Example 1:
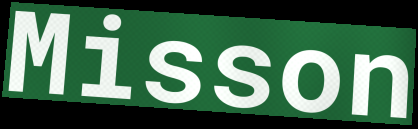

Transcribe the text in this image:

Misson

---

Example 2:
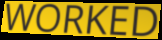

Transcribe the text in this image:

WORKED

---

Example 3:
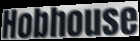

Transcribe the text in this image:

Hobhouse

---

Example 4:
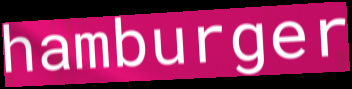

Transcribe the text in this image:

hamburger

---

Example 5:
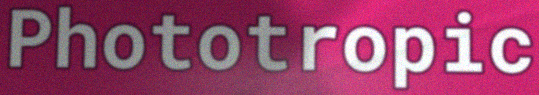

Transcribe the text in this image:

Phototropic